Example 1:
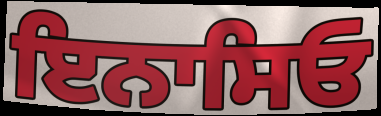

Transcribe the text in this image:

ਇਨਾਸਿਓ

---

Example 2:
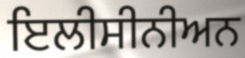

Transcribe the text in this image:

ਇਲੀਸੀਨੀਅਨ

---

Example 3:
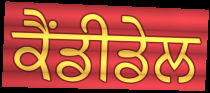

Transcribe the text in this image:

ਕੈਂਡੀਡੇਲ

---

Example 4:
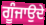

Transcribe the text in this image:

ਗੂੰਜਾਉਦੇ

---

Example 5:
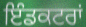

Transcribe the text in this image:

ਇੰਡਕਟਰਾਂ